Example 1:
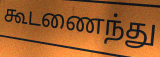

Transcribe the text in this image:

கூடணைந்து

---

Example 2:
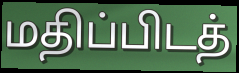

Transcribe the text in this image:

மதிப்பிடத்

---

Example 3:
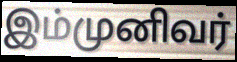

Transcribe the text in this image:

இம்முனிவர்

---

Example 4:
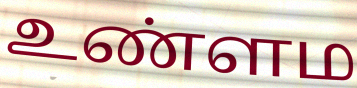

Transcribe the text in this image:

உண்ளம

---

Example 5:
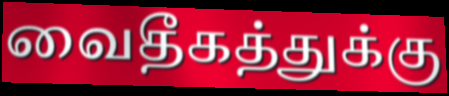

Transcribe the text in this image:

வைதீகத்துக்கு